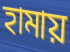
হামায়